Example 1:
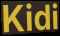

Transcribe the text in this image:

Kidi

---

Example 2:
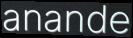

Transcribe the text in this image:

anande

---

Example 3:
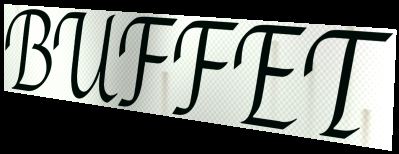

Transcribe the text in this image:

BUFFET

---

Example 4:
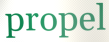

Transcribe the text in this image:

propel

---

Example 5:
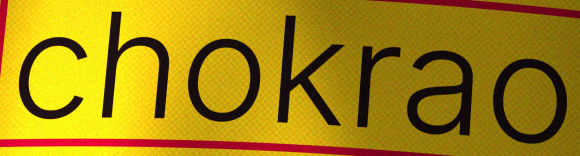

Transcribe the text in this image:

chokrao